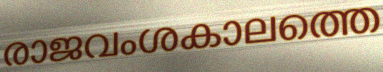
രാജവംശകാലത്തെ